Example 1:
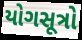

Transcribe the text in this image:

યોગસૂત્રો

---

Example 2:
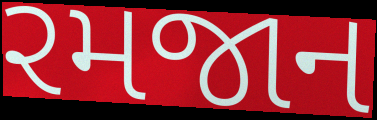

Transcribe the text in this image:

રમજાન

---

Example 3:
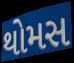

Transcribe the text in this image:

થોમસ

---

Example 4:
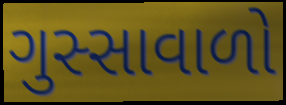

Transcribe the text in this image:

ગુસ્સાવાળો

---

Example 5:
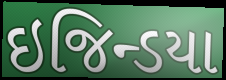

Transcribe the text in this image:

ઇજિન્ડયા